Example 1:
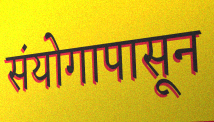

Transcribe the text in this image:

संयोगापासून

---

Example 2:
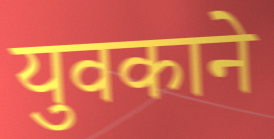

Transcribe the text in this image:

युवकाने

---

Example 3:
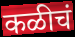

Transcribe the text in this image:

कळीचं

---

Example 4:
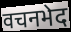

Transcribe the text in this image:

वचनभेद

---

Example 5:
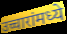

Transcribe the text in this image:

उच्चारांमध्ये